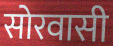
सोरवासी